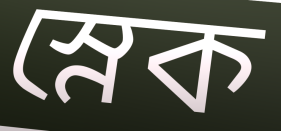
স্নেক